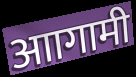
आागामी